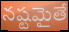
నష్టమైతే